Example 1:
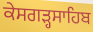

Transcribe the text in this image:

ਕੇਸਗੜ੍ਹਸਾਹਿਬ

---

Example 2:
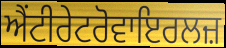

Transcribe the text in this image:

ਐਂਟੀਰੇਟਰੋਵਾਇਰਲਜ਼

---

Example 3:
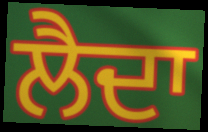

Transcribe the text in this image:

ਲੈਦਾ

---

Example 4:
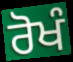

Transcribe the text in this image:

ਰੋਖੰ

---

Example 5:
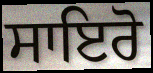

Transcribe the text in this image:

ਸਾਇਰੋ